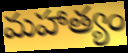
మహాత్యం